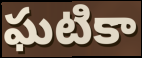
ఘటికా